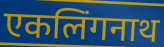
एकलिंगनाथ